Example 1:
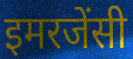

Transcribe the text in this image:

इमरजेंसी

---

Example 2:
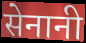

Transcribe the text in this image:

सेनानी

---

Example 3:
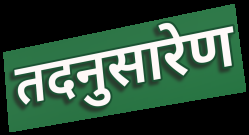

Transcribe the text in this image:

तदनुसारेण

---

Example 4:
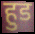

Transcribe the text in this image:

हुड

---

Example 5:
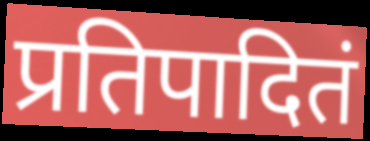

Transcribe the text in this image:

प्रतिपादितं